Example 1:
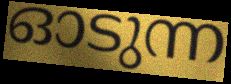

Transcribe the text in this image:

ഓടുന്ന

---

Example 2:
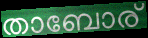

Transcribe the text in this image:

താബോര്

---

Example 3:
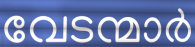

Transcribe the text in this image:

വേടന്മാർ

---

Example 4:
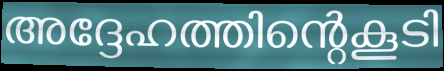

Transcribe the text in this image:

അദ്ദേഹത്തിന്റെകൂടി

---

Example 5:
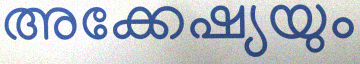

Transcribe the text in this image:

അക്കേഷ്യയും